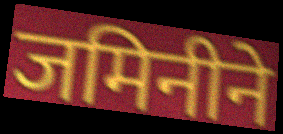
जमिनीने